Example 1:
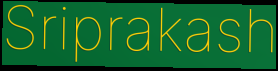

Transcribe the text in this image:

Sriprakash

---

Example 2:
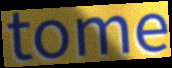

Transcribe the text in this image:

tome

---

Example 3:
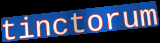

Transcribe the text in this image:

tinctorum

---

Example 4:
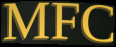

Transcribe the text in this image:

MFC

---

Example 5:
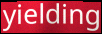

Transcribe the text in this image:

yielding